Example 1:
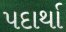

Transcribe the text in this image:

પદાર્થા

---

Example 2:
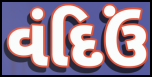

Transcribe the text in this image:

વંદિઉં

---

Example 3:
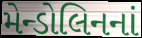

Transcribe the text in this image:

મેન્ડોલિનનાં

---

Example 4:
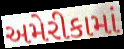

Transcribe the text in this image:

અમેરીકામાં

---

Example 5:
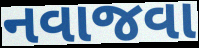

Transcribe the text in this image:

નવાજવા